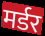
मर्डर